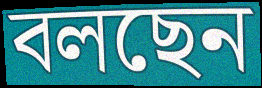
বলছেন